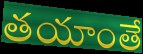
తయాంతే